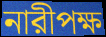
নারীপক্ষ